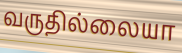
வருதில்லையா